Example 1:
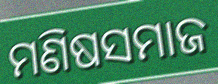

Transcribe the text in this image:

ମଣିଷସମାଜ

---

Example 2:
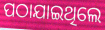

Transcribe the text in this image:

ପଠାଯାଇଥିଲେ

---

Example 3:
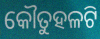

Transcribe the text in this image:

କୌତୁହଳଟି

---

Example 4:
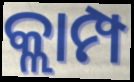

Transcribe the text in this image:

କ୍ଲାମ୍ପ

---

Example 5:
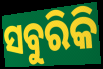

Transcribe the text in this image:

ସବୁରିକି